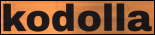
kodolla